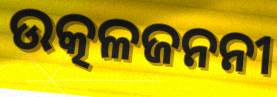
ଉତ୍କଳଜନନୀ